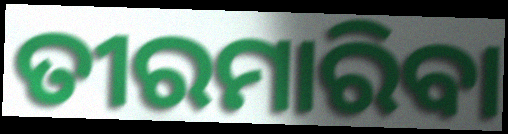
ତୀରମାରିବା